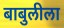
बाबुलीला